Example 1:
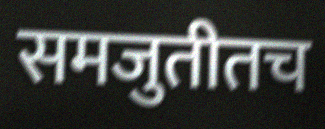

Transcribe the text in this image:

समजुतीतच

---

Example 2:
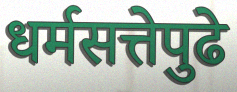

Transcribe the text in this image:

धर्मसत्तेपुढे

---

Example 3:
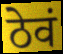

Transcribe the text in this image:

ठेवं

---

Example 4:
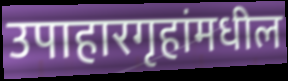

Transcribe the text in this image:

उपाहारगृहांमधील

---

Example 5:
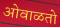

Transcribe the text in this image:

ओवाळतो